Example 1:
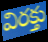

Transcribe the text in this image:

విరక్తు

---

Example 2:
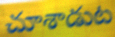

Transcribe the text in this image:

చూశాడుట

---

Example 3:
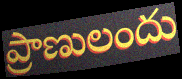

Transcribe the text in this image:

ప్రాణులందు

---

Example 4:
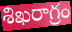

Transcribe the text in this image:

శిఖరాగ్రం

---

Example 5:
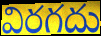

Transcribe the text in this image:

విరగదు